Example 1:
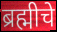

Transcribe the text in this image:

ब्रह्मीचे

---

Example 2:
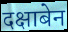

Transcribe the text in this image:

दक्षाबेन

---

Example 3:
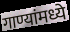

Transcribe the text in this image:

गाण्यांमध्ये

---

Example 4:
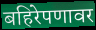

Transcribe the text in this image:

बहिरेपणावर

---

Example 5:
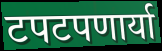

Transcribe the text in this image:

टपटपणार्या